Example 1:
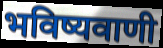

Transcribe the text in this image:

भविष्यवाणी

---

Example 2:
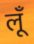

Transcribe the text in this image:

लूँ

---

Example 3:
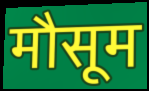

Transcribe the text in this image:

मौसूम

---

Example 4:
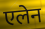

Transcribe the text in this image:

एलेन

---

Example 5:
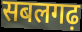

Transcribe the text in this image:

सबलगढ़